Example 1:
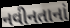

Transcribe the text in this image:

નવીનતાનાં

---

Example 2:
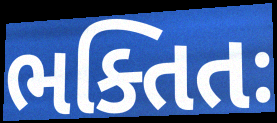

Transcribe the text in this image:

ભક્તિતઃ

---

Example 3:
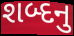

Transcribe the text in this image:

શબ્દનુ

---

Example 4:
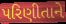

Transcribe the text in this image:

પરિણીતાને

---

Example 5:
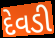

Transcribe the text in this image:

દેવડી